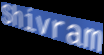
Shivram